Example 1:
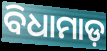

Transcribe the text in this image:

ବିଧାମାଡ଼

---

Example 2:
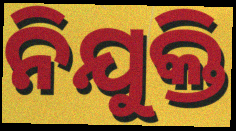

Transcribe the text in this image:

ନିଯୁକ୍ତି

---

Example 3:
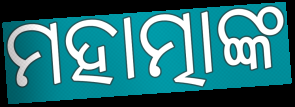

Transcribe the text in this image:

ମହାତ୍ମାଙ୍କ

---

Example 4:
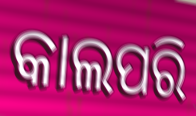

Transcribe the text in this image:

କାଲପରି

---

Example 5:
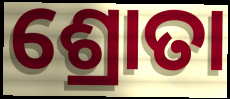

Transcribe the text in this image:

ଶ୍ରୋତା